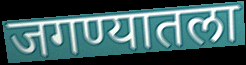
जगण्यातला